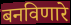
बनविणारे